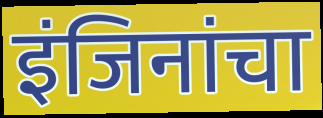
इंजिनांचा